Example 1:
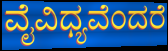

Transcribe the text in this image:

ವೈವಿಧ್ಯವೆಂದರೆ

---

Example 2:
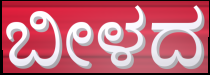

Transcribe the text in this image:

ಬೀಳದ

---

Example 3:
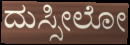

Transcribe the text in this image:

ದುಸ್ಸೀಲೋ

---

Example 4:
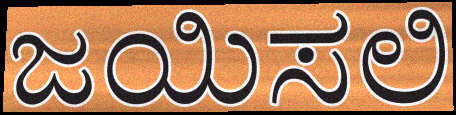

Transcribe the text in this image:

ಜಯಿಸಲಿ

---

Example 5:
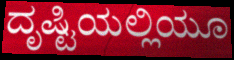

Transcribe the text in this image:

ದೃಷ್ಟಿಯಲ್ಲಿಯೂ